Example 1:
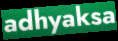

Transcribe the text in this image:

adhyaksa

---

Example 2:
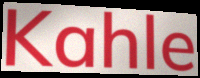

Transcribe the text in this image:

Kahle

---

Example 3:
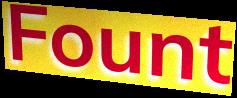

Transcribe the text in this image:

Fount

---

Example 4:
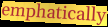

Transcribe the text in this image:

emphatically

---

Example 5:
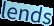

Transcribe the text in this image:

lends